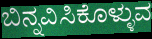
ಬಿನ್ನವಿಸಿಕೊಳ್ಳುವ